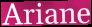
Ariane